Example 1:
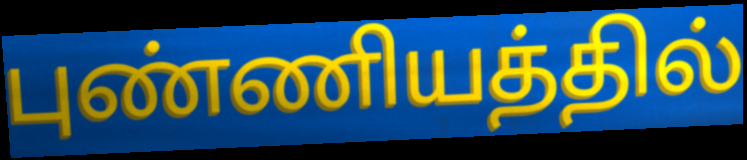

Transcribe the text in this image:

புண்ணியத்தில்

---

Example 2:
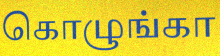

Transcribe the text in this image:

கொழுங்கா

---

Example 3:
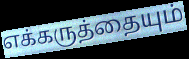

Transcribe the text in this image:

எக்கருத்தையும்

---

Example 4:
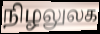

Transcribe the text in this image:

நிழலுலக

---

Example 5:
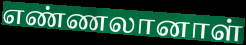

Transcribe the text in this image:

எண்ணலானாள்